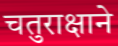
चतुराक्षाने